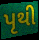
પૃથી